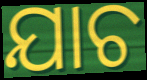
ଯାଚ